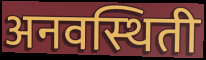
अनवस्थिती